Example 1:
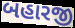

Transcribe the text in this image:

બહારજી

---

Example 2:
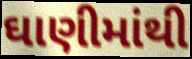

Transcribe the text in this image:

ઘાણીમાંથી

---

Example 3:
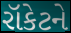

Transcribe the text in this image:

રૉકેટને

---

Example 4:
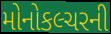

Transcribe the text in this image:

મોનોકલ્ચરની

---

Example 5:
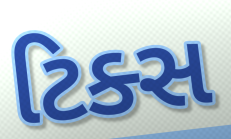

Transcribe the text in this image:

ટિક્સ